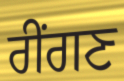
ਰੀਂਗਣ